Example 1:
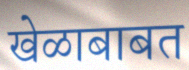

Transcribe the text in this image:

खेळाबाबत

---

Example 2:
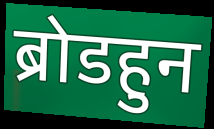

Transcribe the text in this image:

ब्रोडहुन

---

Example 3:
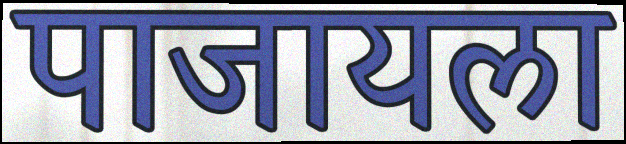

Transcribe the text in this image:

पाजायला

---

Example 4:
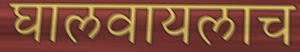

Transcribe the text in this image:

घालवायलाच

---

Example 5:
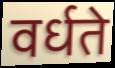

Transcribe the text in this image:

वर्धते